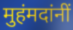
मुहंमदांनीं